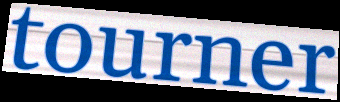
tourner